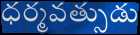
ధర్మవత్సుడు